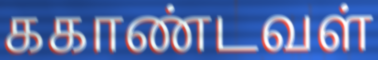
ககாண்டவள்